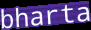
bharta